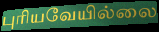
புரியவேயில்லை